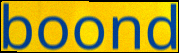
boond